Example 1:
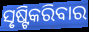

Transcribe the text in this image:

ସୃଷ୍ଟିକରିବାର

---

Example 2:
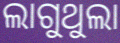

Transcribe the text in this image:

ଲାଗୁଥୁଲା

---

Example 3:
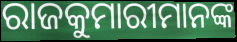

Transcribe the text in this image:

ରାଜକୁମାରୀମାନଙ୍କ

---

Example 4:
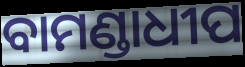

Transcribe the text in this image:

ବାମଣ୍ଡାଧୀପ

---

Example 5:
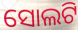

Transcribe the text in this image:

ସୋଲଟି